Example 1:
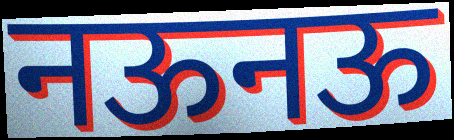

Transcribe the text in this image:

नऊनऊ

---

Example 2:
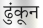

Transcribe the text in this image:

ढुंकून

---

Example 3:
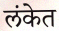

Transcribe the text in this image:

लंकेत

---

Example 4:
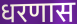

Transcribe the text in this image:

धरणास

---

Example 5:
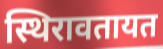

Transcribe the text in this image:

स्थिरावतायत